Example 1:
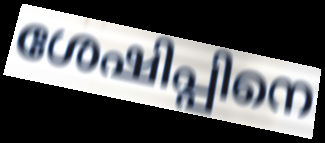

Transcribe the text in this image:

ശേഷിപ്പിനെ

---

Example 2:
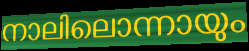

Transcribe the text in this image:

നാലിലൊന്നായും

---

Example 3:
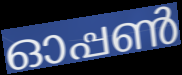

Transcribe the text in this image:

ഓപ്പൺ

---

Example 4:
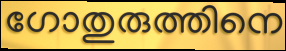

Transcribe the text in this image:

ഗോതുരുത്തിനെ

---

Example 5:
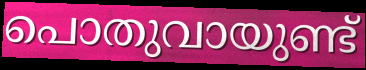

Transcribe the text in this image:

പൊതുവായുണ്ട്